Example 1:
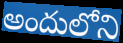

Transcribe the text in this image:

అందులోని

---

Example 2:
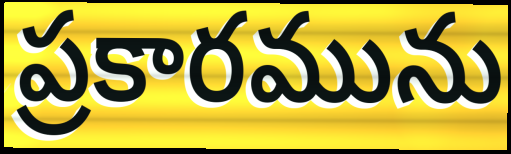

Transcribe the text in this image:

ప్రకారమును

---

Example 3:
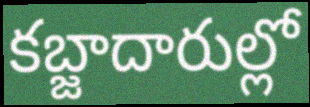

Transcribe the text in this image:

కబ్జాదారుల్లో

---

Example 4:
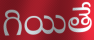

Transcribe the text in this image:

గియితే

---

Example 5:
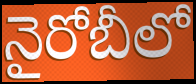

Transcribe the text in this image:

నైరోబీలో